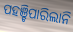
ପହଞ୍ଚିପାରିଲାନି